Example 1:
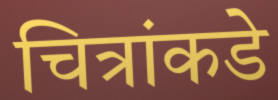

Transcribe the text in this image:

चित्रांकडे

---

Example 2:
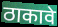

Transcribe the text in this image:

ठाकावे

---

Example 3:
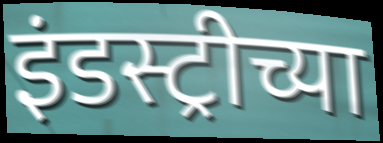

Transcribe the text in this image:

इंडस्ट्रीच्या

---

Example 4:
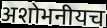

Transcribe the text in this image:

अशोभनीयच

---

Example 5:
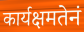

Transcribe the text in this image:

कार्यक्षमतेनं